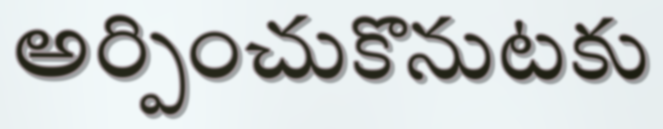
అర్పించుకొనుటకు